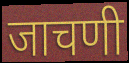
जाचणी